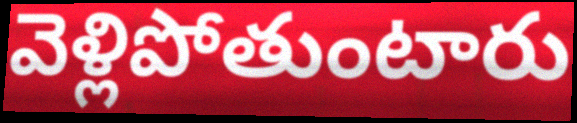
వెళ్లిపోతుంటారు